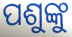
ପଶୁଙ୍କୁ